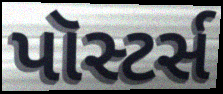
પૉસ્ટર્સ